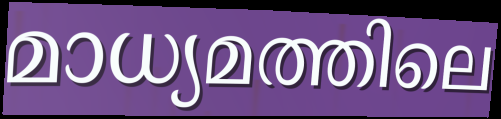
മാധ്യമത്തിലെ